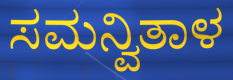
ಸಮನ್ವಿತಾಳ